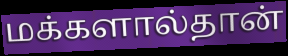
மக்களால்தான்